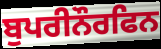
ਬੁਪਰੀਨੌਰਫਿਨ